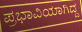
ಪ್ರಭಾವಿಯಾಗಿದ್ದ